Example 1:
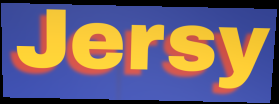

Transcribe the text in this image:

Jersy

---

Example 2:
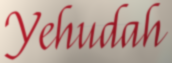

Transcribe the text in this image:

Yehudah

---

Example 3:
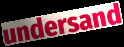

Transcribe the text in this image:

undersand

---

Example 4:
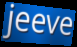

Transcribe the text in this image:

jeeve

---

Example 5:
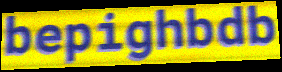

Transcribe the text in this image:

bepighbdb